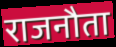
राजनौता